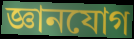
জ্ঞানযোগ